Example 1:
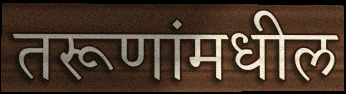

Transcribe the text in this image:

तरूणांमधील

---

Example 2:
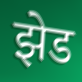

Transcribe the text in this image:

झेड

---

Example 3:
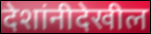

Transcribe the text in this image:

देशांनीदेखील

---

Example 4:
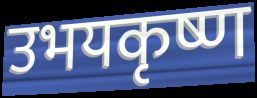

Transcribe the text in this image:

उभयकृष्ण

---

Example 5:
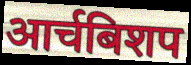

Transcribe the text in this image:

आर्चबिशप